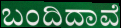
ಬಂದಿದಾವೆ